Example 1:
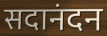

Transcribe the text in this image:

सदानंदन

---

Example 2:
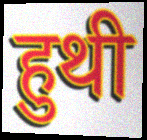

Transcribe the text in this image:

हुथी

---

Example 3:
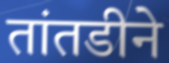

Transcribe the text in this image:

तांतडीने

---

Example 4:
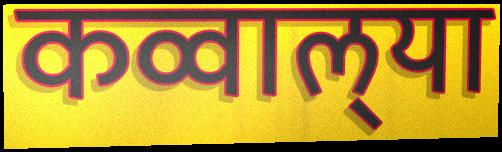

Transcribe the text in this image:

कव्वाल्या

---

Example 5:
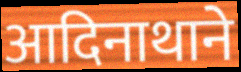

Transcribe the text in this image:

आदिनाथाने